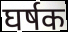
घर्षक